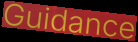
Guidance